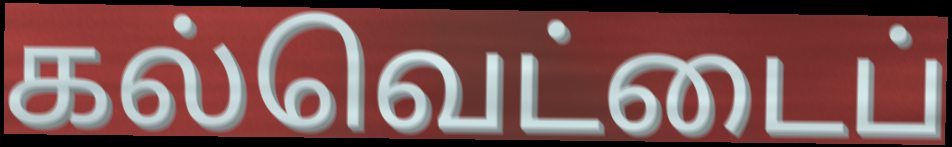
கல்வெட்டைப்